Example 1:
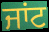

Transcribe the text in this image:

ਜਾਂਟ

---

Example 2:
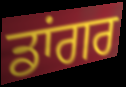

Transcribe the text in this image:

ਡਾਂਗਰ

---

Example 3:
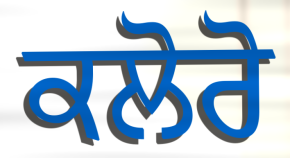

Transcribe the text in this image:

ਕਲੋਰੋ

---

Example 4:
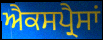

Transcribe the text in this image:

ਐਕਸਪ੍ਰੈਸਾਂ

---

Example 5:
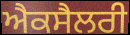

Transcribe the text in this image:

ਐਕਸੈਲਰੀ